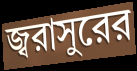
জ্বরাসুরের